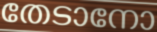
തേടാനോ